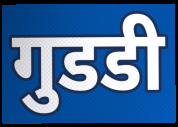
गुडडी